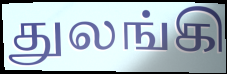
துலங்கி